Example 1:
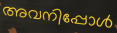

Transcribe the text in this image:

അവനിപ്പോൾ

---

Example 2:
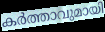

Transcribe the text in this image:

കർത്താവുമായി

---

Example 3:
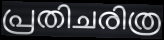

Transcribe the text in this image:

പ്രതിചരിത്ര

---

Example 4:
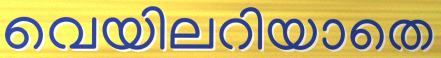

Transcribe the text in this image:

വെയിലറിയാതെ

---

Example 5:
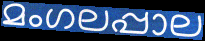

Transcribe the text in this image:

മംഗലപ്പാല